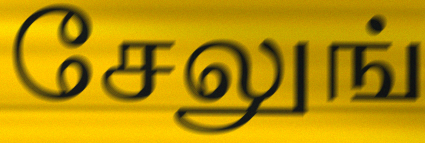
சேலுங்